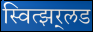
स्वित्झर्लड